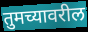
तुमच्यावरील